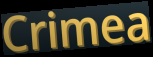
Crimea